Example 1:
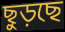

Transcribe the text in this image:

ছুড়ছে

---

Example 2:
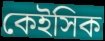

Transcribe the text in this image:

কেইসিক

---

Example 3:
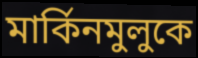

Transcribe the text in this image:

মার্কিনমুলুকে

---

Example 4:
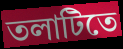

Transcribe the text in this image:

তলাটিতে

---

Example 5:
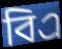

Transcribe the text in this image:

বিএ